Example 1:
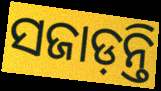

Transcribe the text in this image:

ସଜାଡ଼ନ୍ତି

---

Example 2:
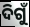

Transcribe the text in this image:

ଦିଗୁଁ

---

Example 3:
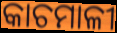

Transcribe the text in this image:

କାଚମାଳୀ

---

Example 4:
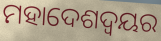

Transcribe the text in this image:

ମହାଦେଶଦ୍ଵୟର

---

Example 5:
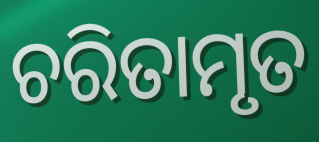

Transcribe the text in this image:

ଚରିତାମୃତ